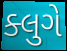
ક્લુગે